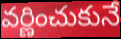
వర్ణించుకునే